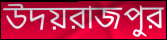
উদয়রাজপুর